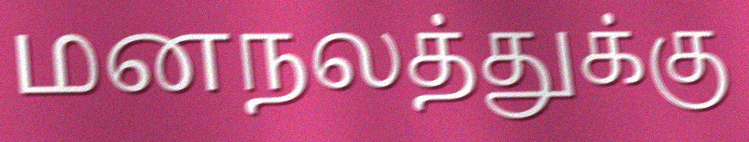
மனநலத்துக்கு